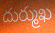
దుర్ముఖ